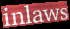
inlaws